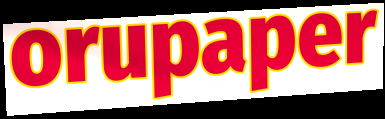
orupaper